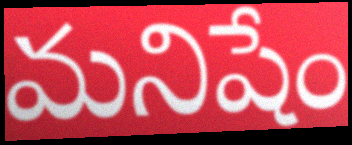
మనిషేం